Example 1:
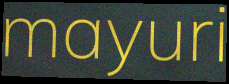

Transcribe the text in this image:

mayuri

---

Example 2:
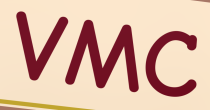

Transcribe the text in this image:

VMC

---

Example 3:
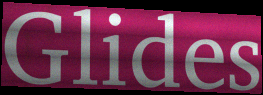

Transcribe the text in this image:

Glides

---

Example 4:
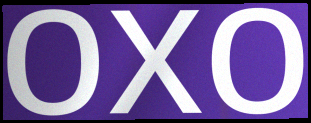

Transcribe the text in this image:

oxo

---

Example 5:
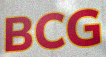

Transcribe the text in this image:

BCG